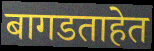
बागडताहेत